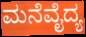
ಮನೆವೈದ್ಯ